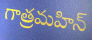
గాత్రమహిన్